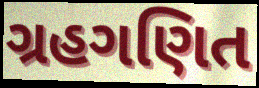
ગ્રહગણિત